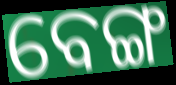
ବେଙ୍ଗ